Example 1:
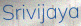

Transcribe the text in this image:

Srivijaya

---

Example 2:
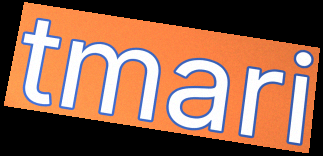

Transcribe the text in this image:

tmari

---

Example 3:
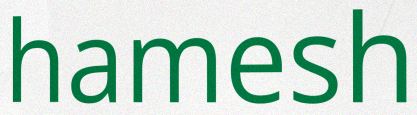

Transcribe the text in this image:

hamesh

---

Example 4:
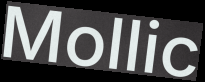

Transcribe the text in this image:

Mollic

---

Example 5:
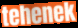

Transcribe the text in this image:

tehenek